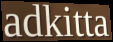
adkitta